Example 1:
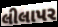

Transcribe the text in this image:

લીલાપર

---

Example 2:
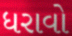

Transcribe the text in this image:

ધરાવો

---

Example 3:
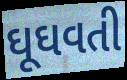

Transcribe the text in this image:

ઘૂઘવતી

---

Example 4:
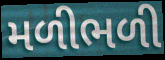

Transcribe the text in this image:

મળીભળી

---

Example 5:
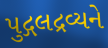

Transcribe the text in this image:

પુદ્ગલદ્રવ્યને